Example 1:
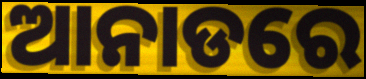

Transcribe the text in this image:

ଆନାଡରେ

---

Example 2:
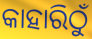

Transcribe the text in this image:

କାହାରିଠୁଁ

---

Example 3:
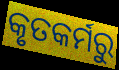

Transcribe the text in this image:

କୃତକର୍ମରୁ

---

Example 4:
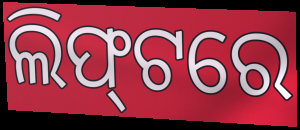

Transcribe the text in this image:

ଲିଫ୍‍ଟରେ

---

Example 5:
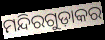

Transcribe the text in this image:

ମନ୍ଦିରଗୁଡ଼ାକର